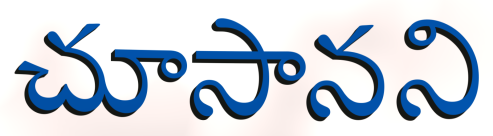
చూసానని